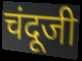
चंदूजी